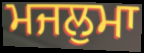
ਮਜਲੁਮਾ